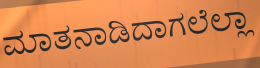
ಮಾತನಾಡಿದಾಗಲೆಲ್ಲಾ